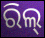
ରିଲ୍